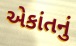
એકાંતનું